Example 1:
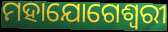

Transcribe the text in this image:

ମହାଯୋଗେଶ୍ୱରୀ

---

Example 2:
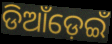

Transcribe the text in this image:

ଡିଆଁଡ଼େଇଁ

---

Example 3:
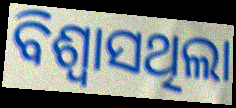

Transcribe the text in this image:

ବିଶ୍ୱାସଥିଲା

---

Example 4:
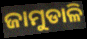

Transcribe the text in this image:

ଜାମୁଡାଳି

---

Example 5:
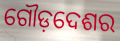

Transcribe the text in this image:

ଗୌଡ଼ଦେଶର